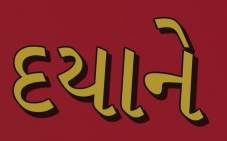
દયાને